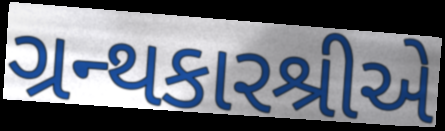
ગ્રન્થકારશ્રીએ